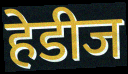
हेडीज